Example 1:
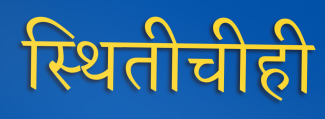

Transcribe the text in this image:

स्थितीचीही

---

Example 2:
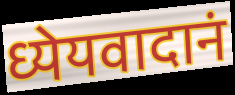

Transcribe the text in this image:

ध्येयवादानं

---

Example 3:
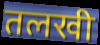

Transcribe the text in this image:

तलखी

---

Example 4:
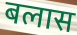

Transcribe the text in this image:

बलास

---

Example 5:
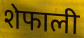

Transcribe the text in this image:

शेफाली